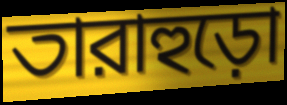
তারাহুড়ো